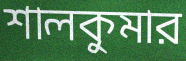
শালকুমার